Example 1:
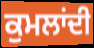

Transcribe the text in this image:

ਕੁਮਲਾਂਦੀ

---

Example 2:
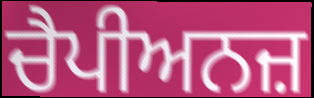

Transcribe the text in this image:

ਚੈਪੀਅਨਜ਼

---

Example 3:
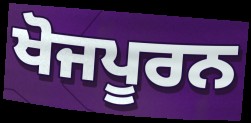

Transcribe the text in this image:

ਖੋਜਪੂਰਨ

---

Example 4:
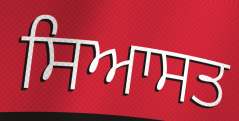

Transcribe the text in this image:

ਸਿਆਸਤ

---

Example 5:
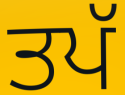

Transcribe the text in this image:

ਤਪੱ